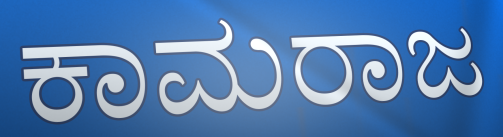
ಕಾಮರಾಜ